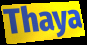
Thaya